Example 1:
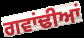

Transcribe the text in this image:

ਗਵਾਂਢੀਆਂ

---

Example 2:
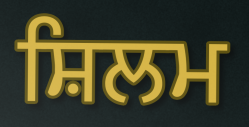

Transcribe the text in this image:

ਸ਼ਿਲਮ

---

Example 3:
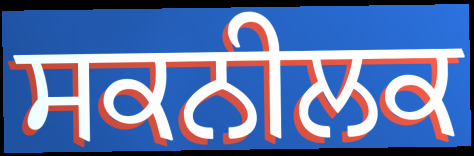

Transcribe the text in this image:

ਸਕਨੀਲਕ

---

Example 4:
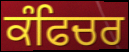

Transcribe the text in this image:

ਕੰਫਿਚਰ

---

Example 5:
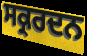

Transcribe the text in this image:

ਸਕ੍ਰਰਦਨ